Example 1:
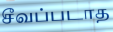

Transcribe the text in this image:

சீவப்படாத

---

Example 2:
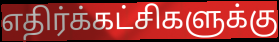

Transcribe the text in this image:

எதிர்க்கட்சிகளுக்கு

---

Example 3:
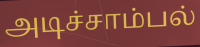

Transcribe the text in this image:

அடிச்சாம்பல்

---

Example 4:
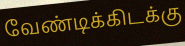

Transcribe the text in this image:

வேண்டிக்கிடக்கு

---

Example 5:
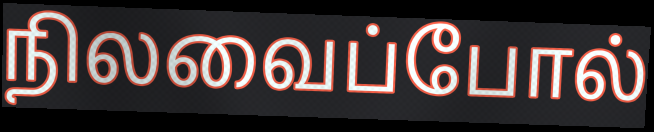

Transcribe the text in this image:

நிலவைப்போல்